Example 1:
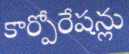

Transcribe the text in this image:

కార్పోరేషన్లు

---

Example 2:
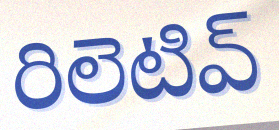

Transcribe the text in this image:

రిలెటివ్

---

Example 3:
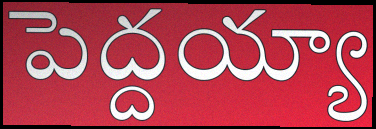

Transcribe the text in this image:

పెద్దయ్యా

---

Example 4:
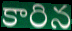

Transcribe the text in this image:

కారిన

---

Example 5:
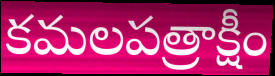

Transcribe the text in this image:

కమలపత్రాక్షీం